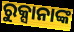
ରୁକ୍ସାନାଙ୍କ